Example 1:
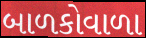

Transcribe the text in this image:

બાળકોવાળા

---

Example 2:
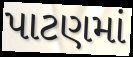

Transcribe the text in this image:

પાટણમાં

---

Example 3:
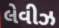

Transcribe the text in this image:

લેવીઝ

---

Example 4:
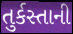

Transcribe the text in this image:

તુર્કસ્તાની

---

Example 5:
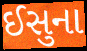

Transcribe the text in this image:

ઈસુના